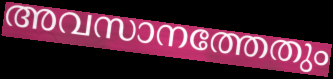
അവസാനത്തേതും